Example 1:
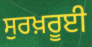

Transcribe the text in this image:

ਸੁਰਖ਼ਰੂਈ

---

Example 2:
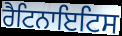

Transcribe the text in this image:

ਰੈਟਿਨਾਇਟਿਸ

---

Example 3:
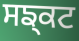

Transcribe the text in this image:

ਸਙ੍ਕਟ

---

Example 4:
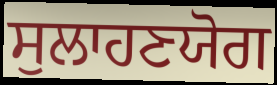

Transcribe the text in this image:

ਸੁਲਾਹਣਯੋਗ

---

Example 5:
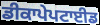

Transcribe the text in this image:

ਡੀਕਾਪੇਪਟਾਈਡ